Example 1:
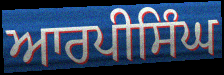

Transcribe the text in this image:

ਆਰਪੀਸਿੰਘ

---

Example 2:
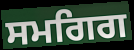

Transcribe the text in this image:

ਸਮਗਿਗ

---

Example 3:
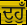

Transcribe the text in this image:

ਦੁਹੁਁ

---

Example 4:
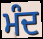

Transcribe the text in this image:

ਮੰਦ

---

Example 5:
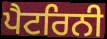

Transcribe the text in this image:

ਪੈਟਰਿਨੀ